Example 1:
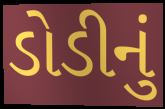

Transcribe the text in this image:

ડોડીનું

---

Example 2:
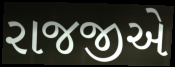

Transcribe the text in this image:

રાજજીએ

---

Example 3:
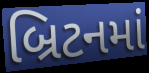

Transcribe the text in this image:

બ્રિટનમાં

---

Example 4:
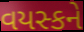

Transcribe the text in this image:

વયસ્કને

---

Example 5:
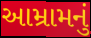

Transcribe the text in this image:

આમ્રામનું